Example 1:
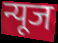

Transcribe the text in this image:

न्‍यूज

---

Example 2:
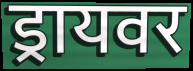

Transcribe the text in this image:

ड्रायवर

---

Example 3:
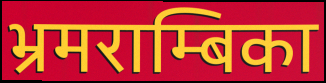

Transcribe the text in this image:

भ्रमराम्बिका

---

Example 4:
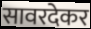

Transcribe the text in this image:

सावरदेकर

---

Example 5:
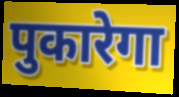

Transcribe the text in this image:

पुकारेगा